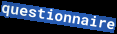
questionnaire